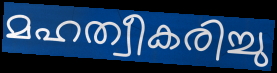
മഹത്വീകരിച്ചു